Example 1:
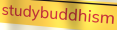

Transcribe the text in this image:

studybuddhism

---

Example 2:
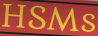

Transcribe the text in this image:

HSMs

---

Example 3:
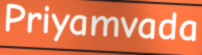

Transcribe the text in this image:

Priyamvada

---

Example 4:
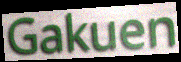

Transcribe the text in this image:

Gakuen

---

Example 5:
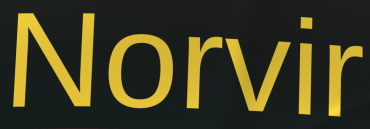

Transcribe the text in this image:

Norvir